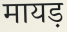
मायड़